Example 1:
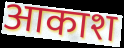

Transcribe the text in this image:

आकाश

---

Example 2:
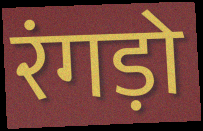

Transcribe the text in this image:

रंगड़ो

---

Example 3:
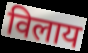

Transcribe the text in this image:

विलाय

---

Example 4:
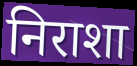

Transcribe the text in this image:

निराशा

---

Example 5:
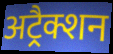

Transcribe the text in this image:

अट्रैक्शन